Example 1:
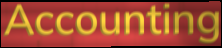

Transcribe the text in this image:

Accounting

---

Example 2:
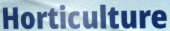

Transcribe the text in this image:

Horticulture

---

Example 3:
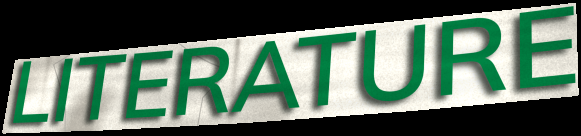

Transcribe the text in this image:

LITERATURE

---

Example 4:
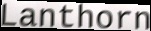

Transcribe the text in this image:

Lanthorn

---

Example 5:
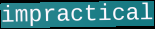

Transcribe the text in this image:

impractical